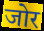
जोर